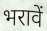
भरावें